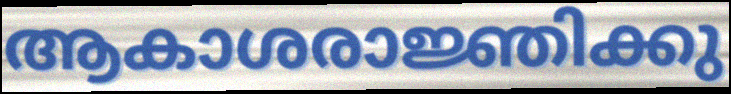
ആകാശരാജ്ഞിക്കു